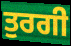
ਤੁਰਗੀ